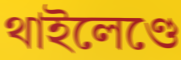
থাইলেণ্ডে